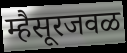
म्हैसूरजवळ